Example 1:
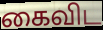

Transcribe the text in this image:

கைவிட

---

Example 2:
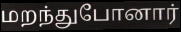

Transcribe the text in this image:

மறந்துபோனார்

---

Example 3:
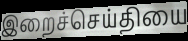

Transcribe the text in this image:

இறைச்செய்தியை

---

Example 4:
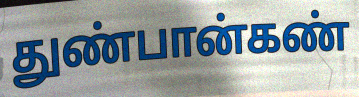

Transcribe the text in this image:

துண்பான்கண்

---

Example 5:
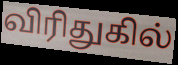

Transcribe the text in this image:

விரிதுகில்